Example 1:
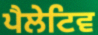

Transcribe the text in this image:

ਪੈਲੇਟਿਵ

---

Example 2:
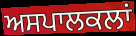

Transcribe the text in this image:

ਅਸਪਾਲਕਲਾਂ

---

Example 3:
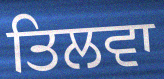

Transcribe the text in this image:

ਤਿਲਵਾ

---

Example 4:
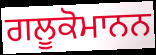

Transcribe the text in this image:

ਗਲੂਕੋਮਾਨਨ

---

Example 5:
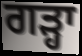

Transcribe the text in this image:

ਗੜ੍ਹਾ